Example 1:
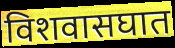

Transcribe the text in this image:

विशवासघात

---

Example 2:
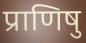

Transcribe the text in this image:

प्राणिषु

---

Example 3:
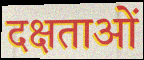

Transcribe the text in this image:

दक्षताओं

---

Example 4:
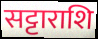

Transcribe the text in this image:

सट्टाराशि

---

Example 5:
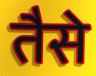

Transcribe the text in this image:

तैसे